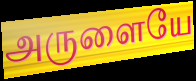
அருளையே